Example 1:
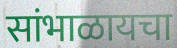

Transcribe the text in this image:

सांभाळायचा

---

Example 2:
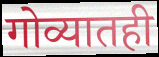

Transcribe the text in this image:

गोव्यातही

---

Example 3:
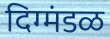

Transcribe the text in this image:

दिग्मंडळ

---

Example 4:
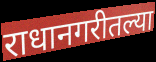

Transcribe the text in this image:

राधानगरीतल्या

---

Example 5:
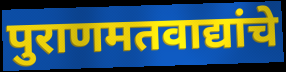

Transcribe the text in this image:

पुराणमतवाद्यांचे